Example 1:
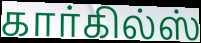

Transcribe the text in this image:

கார்கில்ஸ்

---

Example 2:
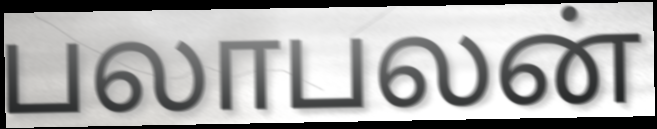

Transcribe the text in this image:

பலாபலன்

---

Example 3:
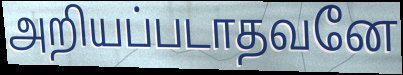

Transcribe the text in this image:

அறியப்படாதவனே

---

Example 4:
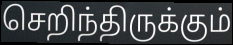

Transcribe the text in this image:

செறிந்திருக்கும்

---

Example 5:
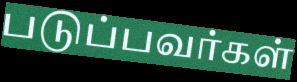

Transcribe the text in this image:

படுப்பவர்கள்